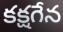
కక్షగేన